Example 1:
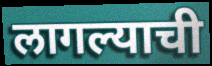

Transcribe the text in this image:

लागल्याची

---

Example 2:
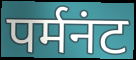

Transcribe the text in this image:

पर्मनंट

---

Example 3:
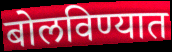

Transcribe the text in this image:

बोलविण्यात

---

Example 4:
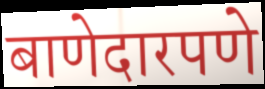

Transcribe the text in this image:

बाणेदारपणे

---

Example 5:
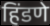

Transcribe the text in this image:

हिंडणे